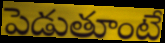
పెడుతూంటే